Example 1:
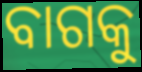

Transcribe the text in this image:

ବାଗକୁ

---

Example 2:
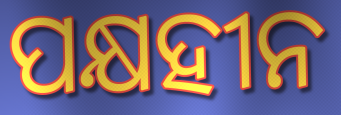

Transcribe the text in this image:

ପକ୍ଷହୀନ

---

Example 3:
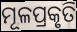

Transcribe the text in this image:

ମୂଳପ୍ରକୃତି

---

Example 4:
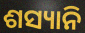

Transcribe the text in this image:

ଶସ୍ୟାନି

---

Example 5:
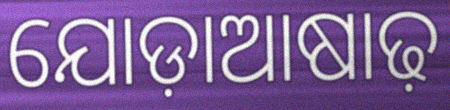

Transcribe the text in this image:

ଯୋଡ଼ାଆଷାଢ଼